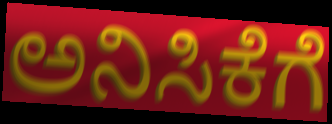
ಅನಿಸಿಕೆಗೆ